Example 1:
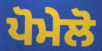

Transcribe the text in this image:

ਪੋਮੇਲੋ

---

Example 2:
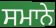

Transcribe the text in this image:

ਸਮਾਨੇ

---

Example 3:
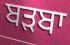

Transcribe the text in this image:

ਬੜਬਾ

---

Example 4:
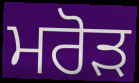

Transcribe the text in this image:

ਮਰੋੜ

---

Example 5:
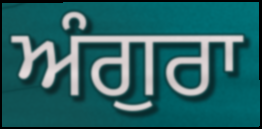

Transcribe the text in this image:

ਅੰਗੁਰਾ